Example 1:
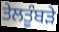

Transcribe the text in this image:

ਤੇਲਤੂੰਬੜੇ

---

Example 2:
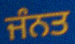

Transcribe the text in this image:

ਜੰਨਤ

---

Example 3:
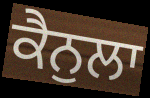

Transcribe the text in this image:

ਕੈਨੁਲਾ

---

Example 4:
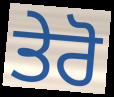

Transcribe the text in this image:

ਤੇਰੋ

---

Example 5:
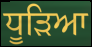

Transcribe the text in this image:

ਧੂੜਿਆ